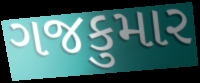
ગજકુમાર